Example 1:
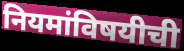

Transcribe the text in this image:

नियमांविषयीची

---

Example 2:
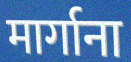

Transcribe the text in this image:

मार्गाना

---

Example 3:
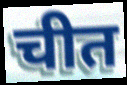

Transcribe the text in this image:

चीत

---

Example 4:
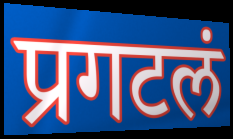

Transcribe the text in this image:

प्रगटलं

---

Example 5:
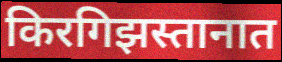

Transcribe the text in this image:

किरगिझस्तानात